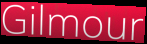
Gilmour